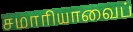
சமாரியாவைப்